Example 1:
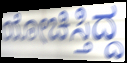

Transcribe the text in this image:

ಯೋಚಿಸ್ತಿದ್ದ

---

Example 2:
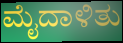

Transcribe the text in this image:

ಮೈದಾಳಿತು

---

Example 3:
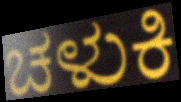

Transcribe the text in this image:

ಚಳುಕಿ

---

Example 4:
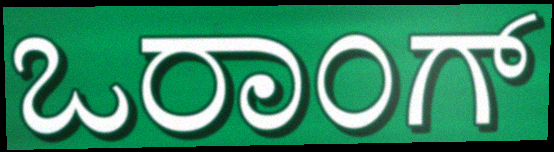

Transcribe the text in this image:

ಒರಾಂಗ್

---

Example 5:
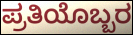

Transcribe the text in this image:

ಪ್ರತಿಯೊಬ್ಬರ